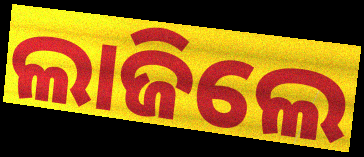
ଲାଜିଲେ